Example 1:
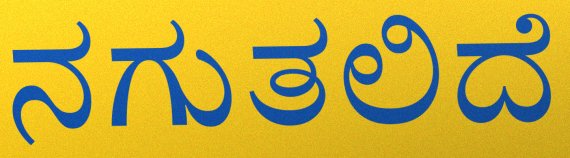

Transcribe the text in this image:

ನಗುತಲಿದೆ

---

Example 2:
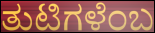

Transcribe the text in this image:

ತುಟಿಗಳೆಂಬ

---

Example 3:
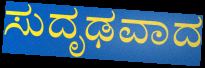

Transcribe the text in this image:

ಸುದೃಢವಾದ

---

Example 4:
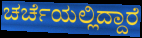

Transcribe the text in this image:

ಚರ್ಚೆಯಲ್ಲಿದ್ದಾರೆ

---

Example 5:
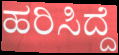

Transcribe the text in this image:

ಹರಿಸಿದ್ದೆ